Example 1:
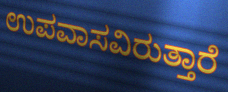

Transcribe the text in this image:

ಉಪವಾಸವಿರುತ್ತಾರೆ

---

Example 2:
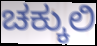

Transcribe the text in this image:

ಚಕ್ಕುಲಿ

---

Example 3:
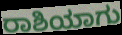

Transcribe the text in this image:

ರಾಶಿಯಾಗು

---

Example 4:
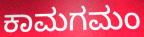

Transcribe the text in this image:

ಕಾಮಗಮಂ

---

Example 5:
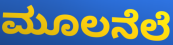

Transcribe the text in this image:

ಮೂಲನೆಲೆ